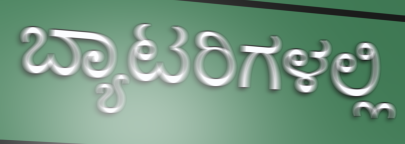
ಬ್ಯಾಟರಿಗಳಲ್ಲಿ